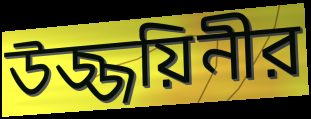
উজ্জয়িনীর